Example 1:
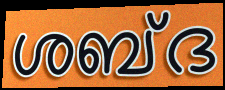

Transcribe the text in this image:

ശബ്ദ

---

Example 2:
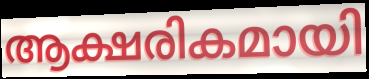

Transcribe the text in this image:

ആക്ഷരികമായി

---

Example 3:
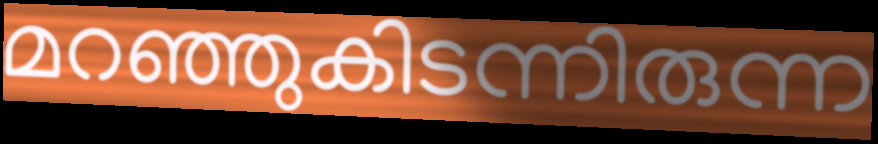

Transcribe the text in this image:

മറഞ്ഞുകിടന്നിരുന്ന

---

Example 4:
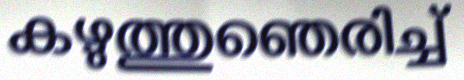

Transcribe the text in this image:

കഴുത്തുഞെരിച്ച്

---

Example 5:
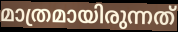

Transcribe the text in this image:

മാത്രമായിരുന്നത്